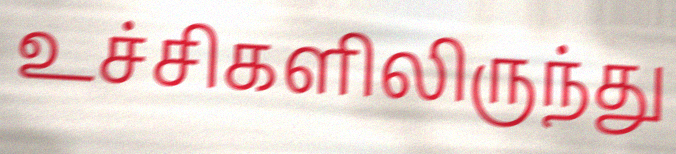
உச்சிகளிலிருந்து